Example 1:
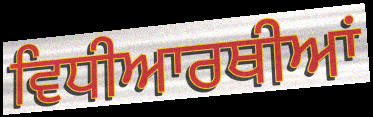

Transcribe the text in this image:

ਵਿਧੀਆਰਥੀਆਂ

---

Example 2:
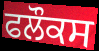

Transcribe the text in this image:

ਫਲੌਕਸ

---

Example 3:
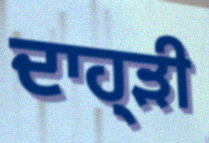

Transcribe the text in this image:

ਦਾਹ੍ੜੀ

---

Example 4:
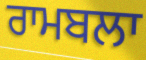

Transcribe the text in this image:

ਰਾਮਬਲਾ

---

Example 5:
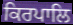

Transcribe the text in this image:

ਕਿਰਪਾਲਿ